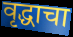
वृद्धाचा